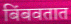
बिंबवतात